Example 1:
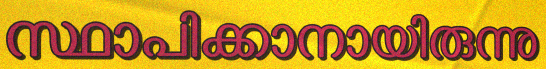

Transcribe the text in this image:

സ്ഥാപിക്കാനായിരുന്നു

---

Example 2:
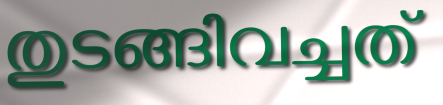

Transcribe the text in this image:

തുടങ്ങിവച്ചത്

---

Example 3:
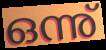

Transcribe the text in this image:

ഒന്നു്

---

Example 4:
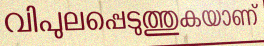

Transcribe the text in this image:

വിപുലപ്പെടുത്തുകയാണ്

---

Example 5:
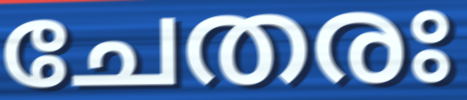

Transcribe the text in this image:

ചേതരഃ